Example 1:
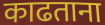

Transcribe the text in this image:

काढताना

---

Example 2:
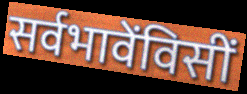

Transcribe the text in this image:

सर्वभावेंविसीं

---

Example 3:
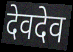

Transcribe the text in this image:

देवदेव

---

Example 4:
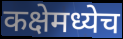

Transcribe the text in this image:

कक्षेमध्येच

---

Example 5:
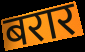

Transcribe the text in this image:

बरार